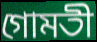
গোমতী